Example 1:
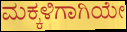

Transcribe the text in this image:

ಮಕ್ಕಳಿಗಾಗಿಯೇ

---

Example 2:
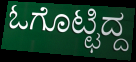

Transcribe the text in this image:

ಓಗೊಟ್ಟಿದ್ದ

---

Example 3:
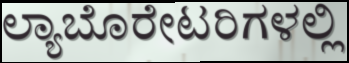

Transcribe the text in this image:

ಲ್ಯಾಬೊರೇಟರಿಗಳಲ್ಲಿ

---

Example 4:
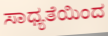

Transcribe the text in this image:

ಸಾಧ್ಯತೆಯಿಂದ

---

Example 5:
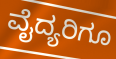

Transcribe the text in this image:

ವೈದ್ಯರಿಗೂ